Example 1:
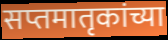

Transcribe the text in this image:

सप्तमातृकांच्या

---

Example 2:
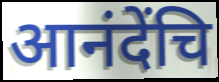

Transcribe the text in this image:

आनंदेंचि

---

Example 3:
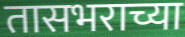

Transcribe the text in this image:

तासभराच्या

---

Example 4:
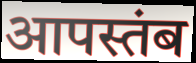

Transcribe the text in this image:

आपस्तंब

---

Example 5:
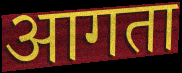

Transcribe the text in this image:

आगता